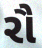
રૌ